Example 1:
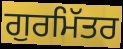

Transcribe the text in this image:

ਗੁਰਮਿੱਤਰ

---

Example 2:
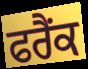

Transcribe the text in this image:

ਫਰੈਂਕ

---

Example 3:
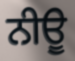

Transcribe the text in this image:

ਨੀਊ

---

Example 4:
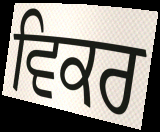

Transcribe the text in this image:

ਵਿਕਰ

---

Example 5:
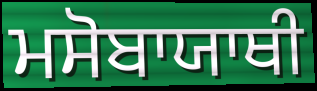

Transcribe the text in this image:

ਮਸੋਬਾਯਾਥੀ